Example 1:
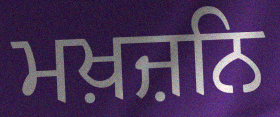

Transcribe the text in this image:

ਮਖ਼ਜ਼ਨਿ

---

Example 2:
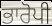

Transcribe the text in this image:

ਭਾਰੋਪੀ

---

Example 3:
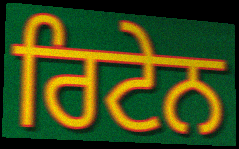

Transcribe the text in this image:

ਰਿਟੇਨ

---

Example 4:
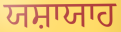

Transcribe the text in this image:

ਯਸ਼ਾਯਾਹ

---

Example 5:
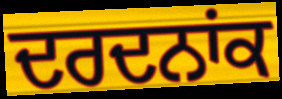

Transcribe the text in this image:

ਦਰਦਨਾਂਕ